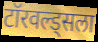
टॉरवल्ड्सला